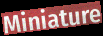
Miniature